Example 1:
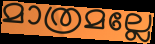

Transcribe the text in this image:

മാത്രമല്ലേ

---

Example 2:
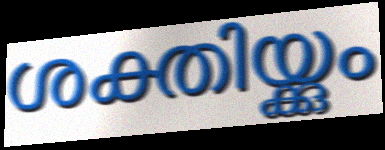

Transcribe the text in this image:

ശക്തിയ്ക്കും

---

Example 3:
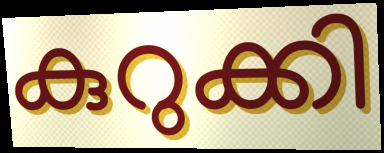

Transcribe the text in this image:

കുറുക്കി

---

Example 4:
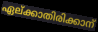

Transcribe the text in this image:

ഏല്ക്കാതിരിക്കാന്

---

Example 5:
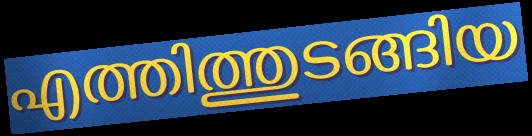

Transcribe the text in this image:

എത്തിത്തുടങ്ങിയ